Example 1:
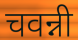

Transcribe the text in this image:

चवन्नी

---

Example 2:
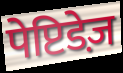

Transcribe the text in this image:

पेप्टिडेज़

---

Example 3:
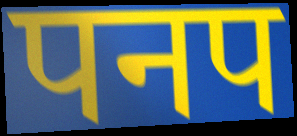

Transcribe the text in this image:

पनप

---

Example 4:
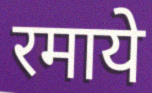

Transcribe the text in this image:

रमाये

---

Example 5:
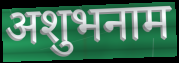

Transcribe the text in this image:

अशुभनाम